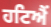
ਹਟਿਐਂ